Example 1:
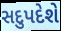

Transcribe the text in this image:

સદુપદેશે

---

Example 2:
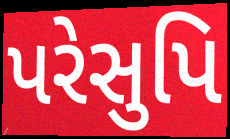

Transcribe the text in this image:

પરેસુપિ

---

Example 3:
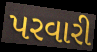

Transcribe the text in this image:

પરવારી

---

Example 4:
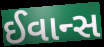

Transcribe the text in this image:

ઈવાન્સ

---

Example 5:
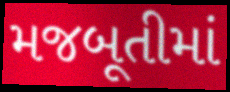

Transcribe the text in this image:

મજબૂતીમાં